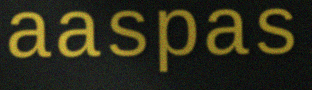
aaspas